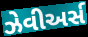
ઝેવીઅર્સ